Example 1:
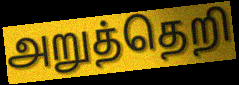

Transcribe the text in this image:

அறுத்தெறி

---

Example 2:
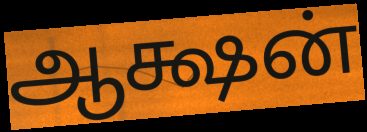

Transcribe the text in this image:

ஆக்ஷன்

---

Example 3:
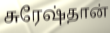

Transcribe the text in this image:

சுரேஷ்தான்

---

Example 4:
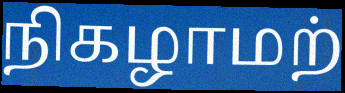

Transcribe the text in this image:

நிகழாமற்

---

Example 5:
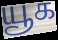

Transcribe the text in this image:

யூக